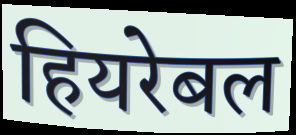
हियरेबल